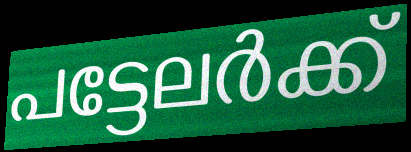
പട്ടേലർക്ക്